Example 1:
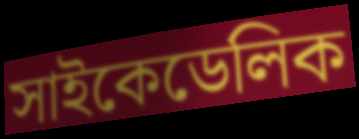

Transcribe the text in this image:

সাইকেডেলিক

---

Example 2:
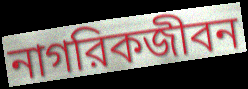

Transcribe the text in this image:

নাগরিকজীবন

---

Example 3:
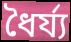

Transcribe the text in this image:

ধৈর্য্য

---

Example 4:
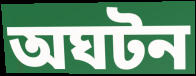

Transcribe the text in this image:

অঘটন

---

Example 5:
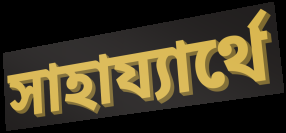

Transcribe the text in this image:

সাহায্যার্থে